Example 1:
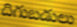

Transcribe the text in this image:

దిగుబడులు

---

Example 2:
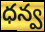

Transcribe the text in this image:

ధన్వ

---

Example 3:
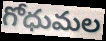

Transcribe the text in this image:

గోధుమల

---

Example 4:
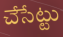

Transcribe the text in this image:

చేసేట్టు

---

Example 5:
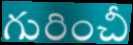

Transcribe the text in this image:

గురించీ